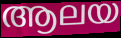
ആലയ